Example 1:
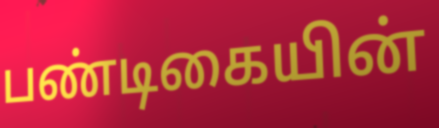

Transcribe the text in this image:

பண்டிகையின்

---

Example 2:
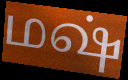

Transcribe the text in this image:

மஷ்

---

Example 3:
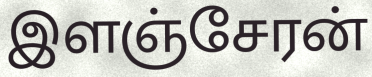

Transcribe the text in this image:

இளஞ்சேரன்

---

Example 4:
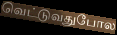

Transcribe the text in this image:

வெட்டுவதுபோல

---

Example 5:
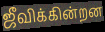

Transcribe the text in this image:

ஜீவிக்கின்றன